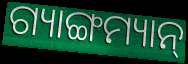
ଗ୍ୟାଙ୍ଗମ୍ୟାନ୍